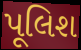
પૂલિશ